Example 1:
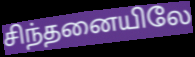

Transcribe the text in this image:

சிந்தனையிலே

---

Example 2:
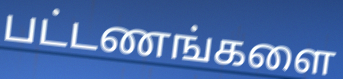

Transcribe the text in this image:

பட்டணங்களை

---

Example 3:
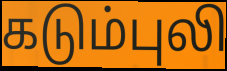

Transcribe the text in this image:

கடும்புலி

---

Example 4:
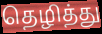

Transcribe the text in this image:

தெழித்து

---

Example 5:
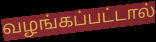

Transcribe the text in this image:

வழங்கப்பட்டால்